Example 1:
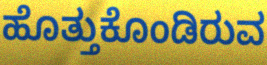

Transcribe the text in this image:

ಹೊತ್ತುಕೊಂಡಿರುವ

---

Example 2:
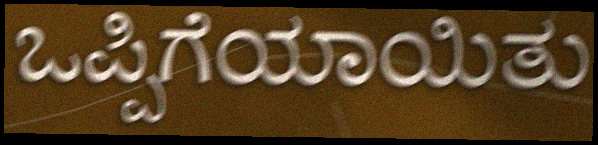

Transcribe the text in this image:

ಒಪ್ಪಿಗೆಯಾಯಿತು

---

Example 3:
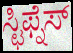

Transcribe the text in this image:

ಸ್ಟಿಫ್ನೆಸ್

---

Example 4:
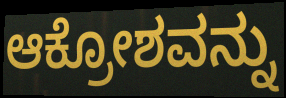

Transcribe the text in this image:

ಆಕ್ರೋಶವನ್ನು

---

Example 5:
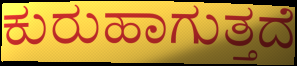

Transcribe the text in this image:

ಕುರುಹಾಗುತ್ತದೆ